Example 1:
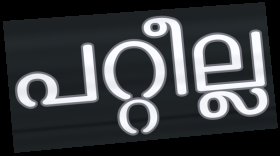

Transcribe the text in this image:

പറ്റീല്ല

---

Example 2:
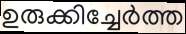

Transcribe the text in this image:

ഉരുക്കിച്ചേർത്ത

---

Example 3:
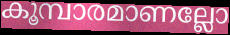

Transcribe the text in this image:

കൂമ്പാരമാണല്ലോ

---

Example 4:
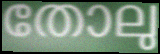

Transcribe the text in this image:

തോലു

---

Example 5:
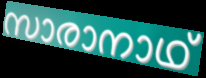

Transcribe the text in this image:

സാരാനാഥ്